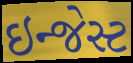
ઇન્જેસ્ટ